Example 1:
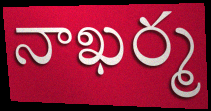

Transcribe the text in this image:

నాఖర్మ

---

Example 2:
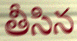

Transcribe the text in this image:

తీసిన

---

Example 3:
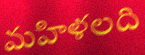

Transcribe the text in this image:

మహిళలది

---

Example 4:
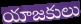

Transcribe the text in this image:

యాజకులు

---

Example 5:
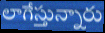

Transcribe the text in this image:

లాగేస్తున్నారు